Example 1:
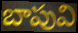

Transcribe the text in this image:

బాపువి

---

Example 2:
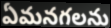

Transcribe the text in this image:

ఏమనగలను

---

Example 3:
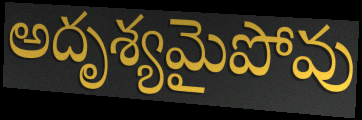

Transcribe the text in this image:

అదృశ్యమైపోవు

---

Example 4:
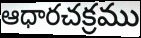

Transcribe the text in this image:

ఆధారచక్రము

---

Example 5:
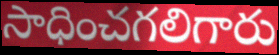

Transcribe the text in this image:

సాధించగలిగారు